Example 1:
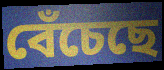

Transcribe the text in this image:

বেঁচেছে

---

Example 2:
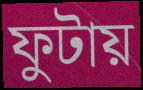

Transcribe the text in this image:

ফুটায়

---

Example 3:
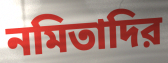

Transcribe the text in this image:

নমিতাদির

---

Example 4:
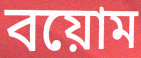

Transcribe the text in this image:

বয়োম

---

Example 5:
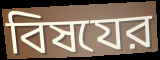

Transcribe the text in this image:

বিষযের